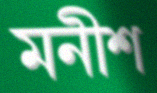
মনীশ